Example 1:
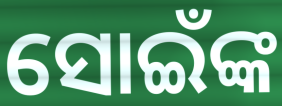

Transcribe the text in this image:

ସୋଇଁଙ୍କ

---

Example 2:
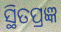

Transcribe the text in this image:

ସ୍ଥିତପ୍ରଜ୍ଞ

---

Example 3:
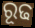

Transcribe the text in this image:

ରୂଢ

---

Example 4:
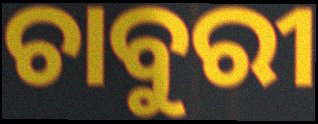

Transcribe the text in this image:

ଚାବୁରୀ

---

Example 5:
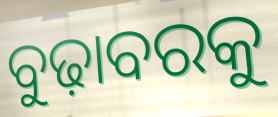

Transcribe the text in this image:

ବୁଢ଼ାବରକୁ